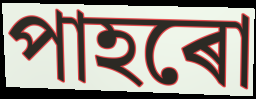
পাহৰো